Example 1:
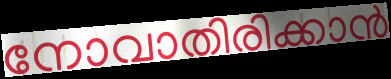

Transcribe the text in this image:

നോവാതിരിക്കാൻ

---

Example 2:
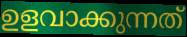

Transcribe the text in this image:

ഉളവാക്കുന്നത്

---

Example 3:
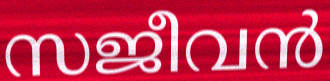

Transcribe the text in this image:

സജീവൻ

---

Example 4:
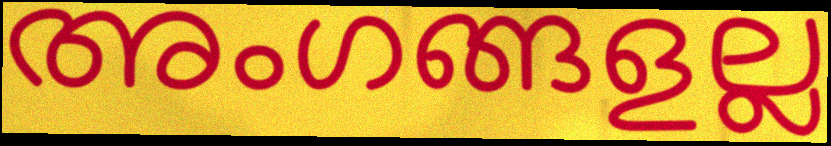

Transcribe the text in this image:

അംഗങ്ങളല്ല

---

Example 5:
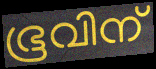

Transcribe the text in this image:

ഭൂവിന്